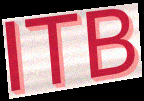
ITB